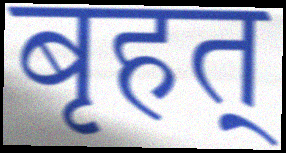
बृहत्